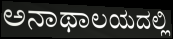
ಅನಾಥಾಲಯದಲ್ಲಿ